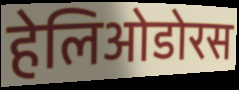
हेलिओडोरस